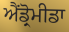
ਐਂਡ੍ਰੋਮੀਡਾ